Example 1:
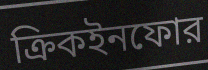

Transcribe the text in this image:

ক্রিকইনফোর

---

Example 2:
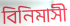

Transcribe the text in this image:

বিনিমাসী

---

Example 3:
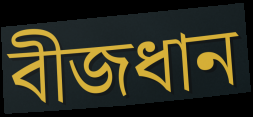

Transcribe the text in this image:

বীজধান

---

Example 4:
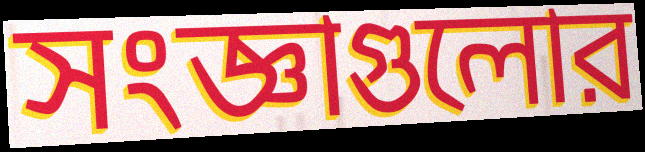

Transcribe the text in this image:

সংজ্ঞাগুলোর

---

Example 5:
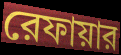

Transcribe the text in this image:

রেফায়ার